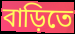
বাড়িতে